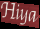
Hiya